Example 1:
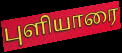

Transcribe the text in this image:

புளியாரை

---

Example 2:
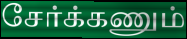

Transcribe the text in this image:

சேர்க்கணும்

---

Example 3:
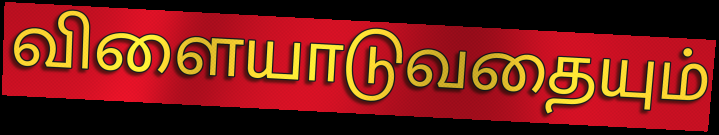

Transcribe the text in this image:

விளையாடுவதையும்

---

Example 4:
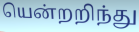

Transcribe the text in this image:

யென்றறிந்து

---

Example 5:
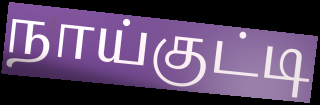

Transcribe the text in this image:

நாய்குட்டி